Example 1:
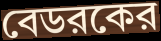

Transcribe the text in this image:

বেডরকের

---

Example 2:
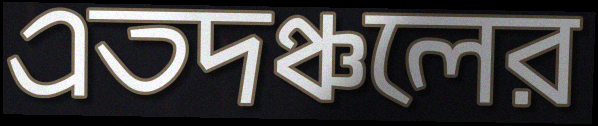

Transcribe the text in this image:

এতদঞ্চলের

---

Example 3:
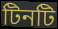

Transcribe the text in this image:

টিনটি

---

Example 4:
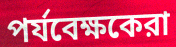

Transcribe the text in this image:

পর্যবেক্ষকেরা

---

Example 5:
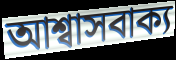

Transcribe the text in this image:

আশ্বাসবাক্য